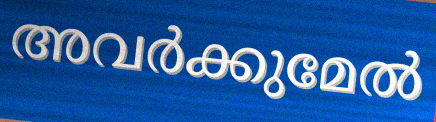
അവർക്കുമേൽ